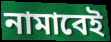
নামাবেই